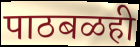
पाठबळही